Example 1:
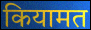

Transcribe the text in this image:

कियामत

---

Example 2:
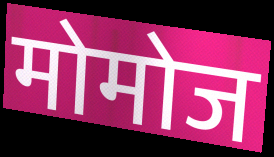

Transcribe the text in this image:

मोमोज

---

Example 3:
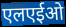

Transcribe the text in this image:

एलएईओ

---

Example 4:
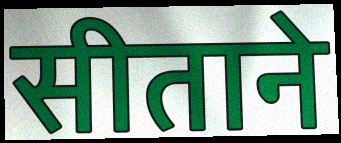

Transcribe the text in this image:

सीताने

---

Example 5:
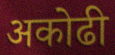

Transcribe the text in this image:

अकोढी